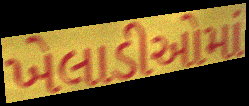
ખેલાડીઓમાં